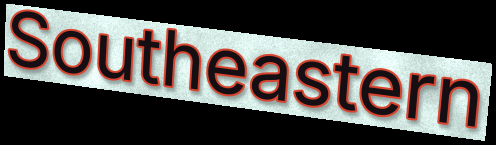
Southeastern